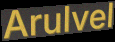
Arulvel